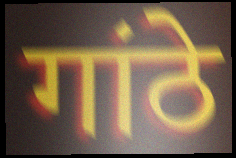
गांठे